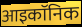
आइकॉनिक